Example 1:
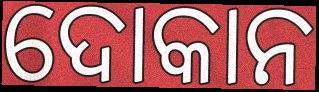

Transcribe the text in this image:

ଦୋକାନ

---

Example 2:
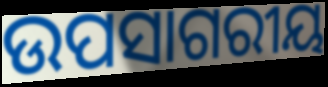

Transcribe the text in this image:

ଉପସାଗରୀୟ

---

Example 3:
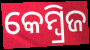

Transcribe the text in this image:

କେମ୍ବ୍ରିଜ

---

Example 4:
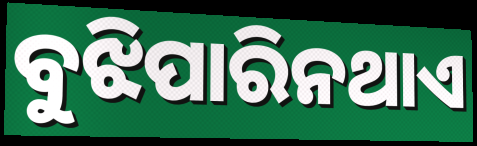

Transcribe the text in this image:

ବୁଝିପାରିନଥାଏ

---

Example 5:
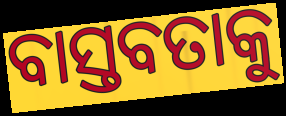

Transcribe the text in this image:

ବାସ୍ତବତାକୁ